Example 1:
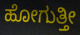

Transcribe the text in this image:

ಹೋಗುತ್ತೀ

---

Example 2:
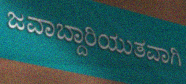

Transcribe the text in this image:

ಜವಾಬ್ದಾರಿಯುತವಾಗಿ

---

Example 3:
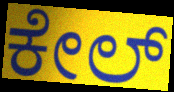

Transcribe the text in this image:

ಕೇಲ್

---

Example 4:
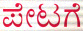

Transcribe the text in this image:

ಪೇಟಗೆ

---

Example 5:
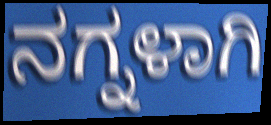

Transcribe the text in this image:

ನಗ್ನಳಾಗಿ